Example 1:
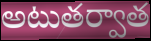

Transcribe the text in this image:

అటుతర్వాత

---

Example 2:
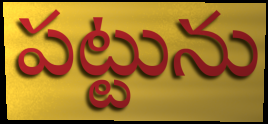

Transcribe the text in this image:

పట్టును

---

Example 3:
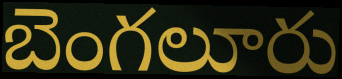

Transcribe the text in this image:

బెంగలూరు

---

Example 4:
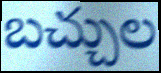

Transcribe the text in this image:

బచ్చుల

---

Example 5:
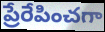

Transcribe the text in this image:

ప్రేరేపించగా